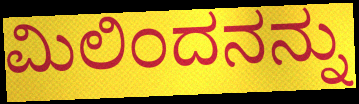
ಮಿಲಿಂದನನ್ನು